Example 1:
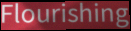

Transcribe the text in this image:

Flourishing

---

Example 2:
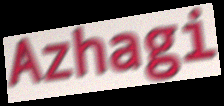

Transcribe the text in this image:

Azhagi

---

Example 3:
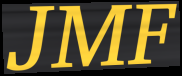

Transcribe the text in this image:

JMF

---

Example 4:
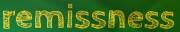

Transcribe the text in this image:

remissness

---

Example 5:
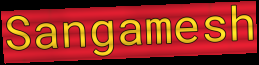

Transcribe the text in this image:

Sangamesh